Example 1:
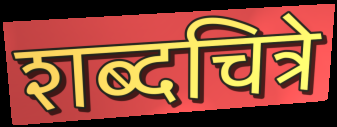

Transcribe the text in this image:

शब्दचित्रे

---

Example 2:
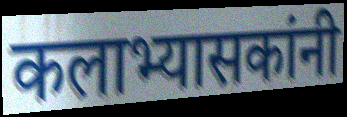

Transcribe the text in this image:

कलाभ्यासकांनी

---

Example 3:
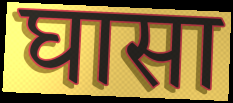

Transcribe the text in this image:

घासा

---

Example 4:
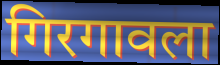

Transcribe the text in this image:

गिरगावला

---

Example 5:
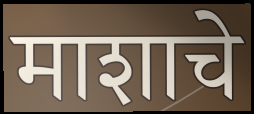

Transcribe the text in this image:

माशाचे